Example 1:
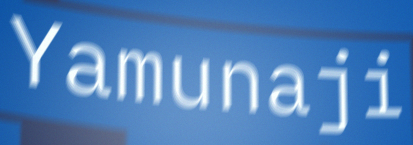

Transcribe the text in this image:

Yamunaji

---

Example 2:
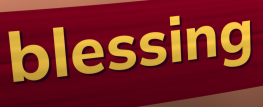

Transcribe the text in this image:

blessing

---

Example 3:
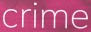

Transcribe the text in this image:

crime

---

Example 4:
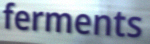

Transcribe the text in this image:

ferments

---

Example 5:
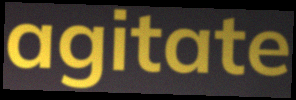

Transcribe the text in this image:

agitate